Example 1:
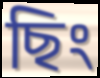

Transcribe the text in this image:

ছিং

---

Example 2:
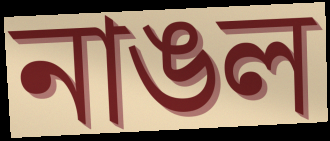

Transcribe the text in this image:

নাঙল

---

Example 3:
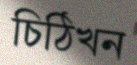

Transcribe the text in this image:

চিঠিখন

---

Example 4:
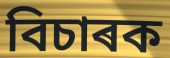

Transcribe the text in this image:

বিচাৰক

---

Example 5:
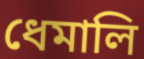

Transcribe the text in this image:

ধেমালি